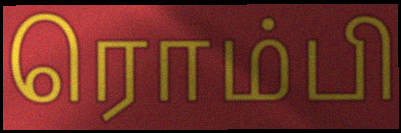
ரொம்பி